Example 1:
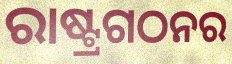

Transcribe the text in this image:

ରାଷ୍ଟ୍ରଗଠନର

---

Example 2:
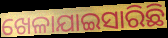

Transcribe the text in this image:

ଖେଳାଯାଇସାରିଛି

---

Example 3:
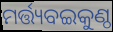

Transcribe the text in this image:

ମର୍ତ୍ତ୍ୟବଇକୁଣ୍ଠ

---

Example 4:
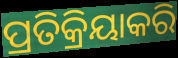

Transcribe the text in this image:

ପ୍ରତିକ୍ରିୟାକରି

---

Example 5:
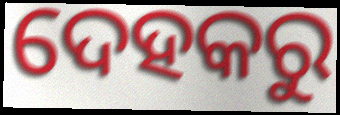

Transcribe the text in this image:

ଦେହକରୁ